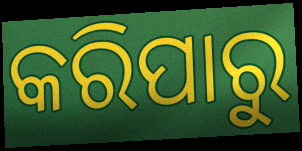
କରିପାରୁ